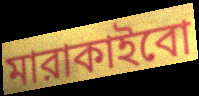
মারাকাইবো